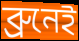
ব্ৰুনেই